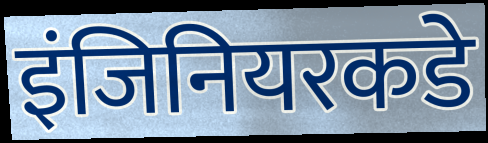
इंजिनियरकडे